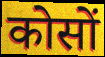
कोसों